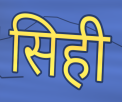
सिही